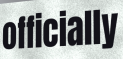
officially